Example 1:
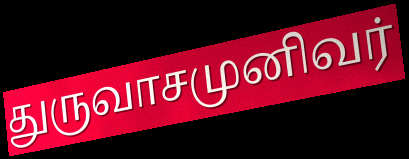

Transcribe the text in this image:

துருவாசமுனிவர்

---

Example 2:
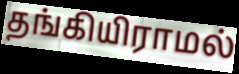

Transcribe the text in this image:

தங்கியிராமல்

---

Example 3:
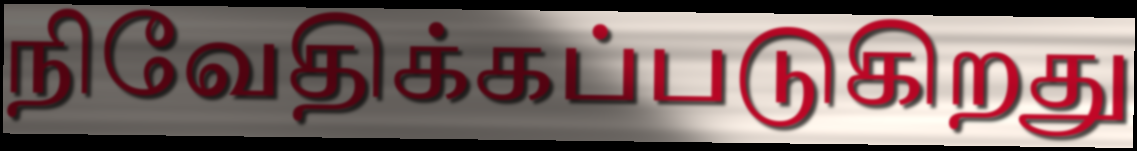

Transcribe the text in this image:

நிவேதிக்கப்படுகிறது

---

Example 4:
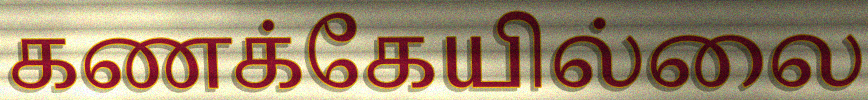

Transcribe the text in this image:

கணக்கேயில்லை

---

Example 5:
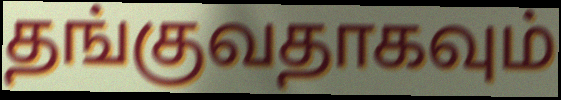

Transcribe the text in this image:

தங்குவதாகவும்